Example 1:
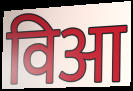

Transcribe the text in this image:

विआ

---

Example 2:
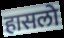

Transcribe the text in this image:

हासलो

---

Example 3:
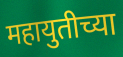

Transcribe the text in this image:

महायुतीच्या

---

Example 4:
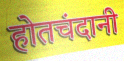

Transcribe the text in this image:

होतचंदानी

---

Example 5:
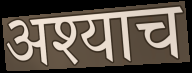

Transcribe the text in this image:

अश्याच